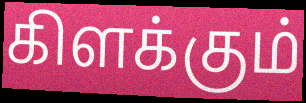
கிளக்கும்